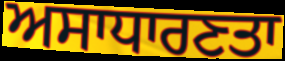
ਅਸਾਧਾਰਣਤਾ